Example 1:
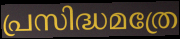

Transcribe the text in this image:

പ്രസിദ്ധമത്രേ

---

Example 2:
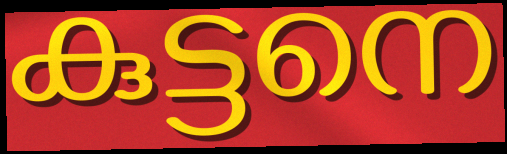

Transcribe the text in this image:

കുട്ടനെ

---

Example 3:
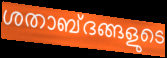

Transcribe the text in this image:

ശതാബ്ദങ്ങളുടെ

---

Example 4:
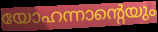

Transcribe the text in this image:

യോഹന്നാന്റെയും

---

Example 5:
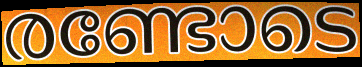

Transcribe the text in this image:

രണ്ടോടെ